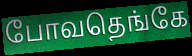
போவதெங்கே